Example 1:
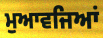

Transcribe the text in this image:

ਮੁਆਵਜਿਆਂ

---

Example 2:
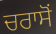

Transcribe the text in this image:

ਚਰਾਸੋਂ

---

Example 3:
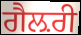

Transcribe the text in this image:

ਗੈਲ਼ਰੀ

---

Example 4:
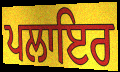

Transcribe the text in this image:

ਪਲਾਇਰ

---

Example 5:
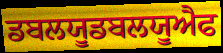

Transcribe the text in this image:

ਡਬਲਯੂਡਬਲਯੂਐਫ